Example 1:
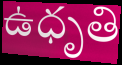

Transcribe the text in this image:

ఉధృతి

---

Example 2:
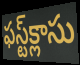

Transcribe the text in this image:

ఫస్ట్‌క్లాసు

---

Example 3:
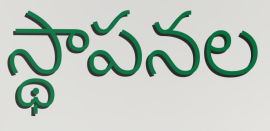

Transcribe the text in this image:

స్థాపనల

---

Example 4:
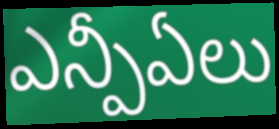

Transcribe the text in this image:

ఎన్పీఏలు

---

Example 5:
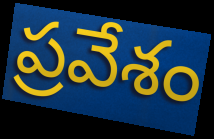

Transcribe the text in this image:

ప్రవేశం